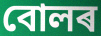
বোলৰ